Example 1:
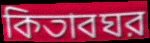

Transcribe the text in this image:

কিতাবঘর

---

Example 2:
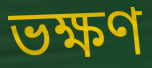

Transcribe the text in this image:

ভক্ষণ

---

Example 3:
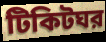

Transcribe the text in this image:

টিকিটঘর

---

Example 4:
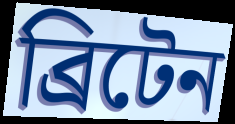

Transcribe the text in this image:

ব্রিটেন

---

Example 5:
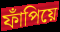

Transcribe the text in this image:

ফাঁপিয়ে